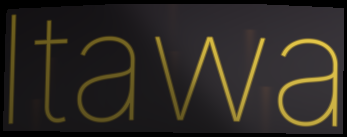
Itawa